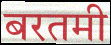
बरतमी